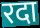
रदा